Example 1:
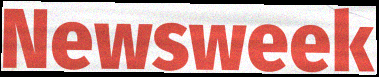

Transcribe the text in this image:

Newsweek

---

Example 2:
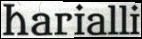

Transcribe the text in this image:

harialli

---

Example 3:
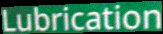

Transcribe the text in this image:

Lubrication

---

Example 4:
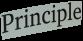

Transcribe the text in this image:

Principle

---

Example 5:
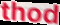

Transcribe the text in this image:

thod